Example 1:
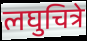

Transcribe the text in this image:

लघुचित्रे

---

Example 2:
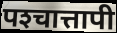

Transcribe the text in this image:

पश्‍चात्तापी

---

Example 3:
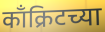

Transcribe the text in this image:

काँक्रिटच्या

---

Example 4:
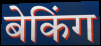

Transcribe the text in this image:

बेकिंग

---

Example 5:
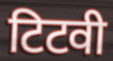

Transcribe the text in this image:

टिटवी